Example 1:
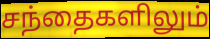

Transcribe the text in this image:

சந்தைகளிலும்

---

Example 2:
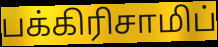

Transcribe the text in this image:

பக்கிரிசாமிப்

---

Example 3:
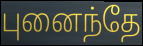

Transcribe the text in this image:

புனைந்தே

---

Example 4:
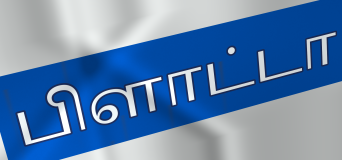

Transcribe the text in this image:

பிளாட்டா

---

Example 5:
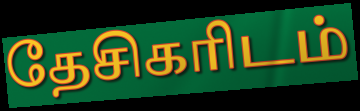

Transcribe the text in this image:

தேசிகரிடம்